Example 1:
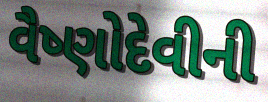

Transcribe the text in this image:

વૈષ્ણોદેવીની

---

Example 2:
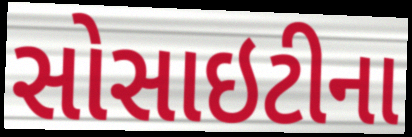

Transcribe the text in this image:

સોસાઇટીના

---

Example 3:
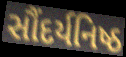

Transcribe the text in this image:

સૌંદર્યનિષ્ઠ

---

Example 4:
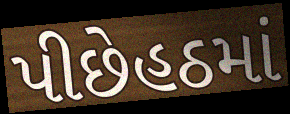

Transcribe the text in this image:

પીછેહઠમાં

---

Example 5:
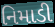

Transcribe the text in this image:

નિમાડી